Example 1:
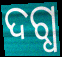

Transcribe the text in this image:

ଦଗ୍ଧ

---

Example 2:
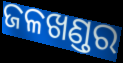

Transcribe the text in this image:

ଜଳଖଣ୍ଡର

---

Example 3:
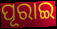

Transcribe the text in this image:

ପୂରାଇ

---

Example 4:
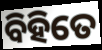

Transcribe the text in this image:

ବିହିତେ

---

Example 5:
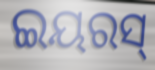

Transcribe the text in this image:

ଇୟରସ୍